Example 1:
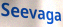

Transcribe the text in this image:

Seevaga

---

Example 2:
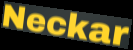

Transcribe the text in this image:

Neckar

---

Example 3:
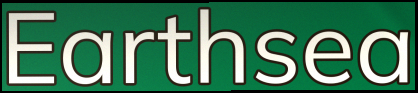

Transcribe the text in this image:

Earthsea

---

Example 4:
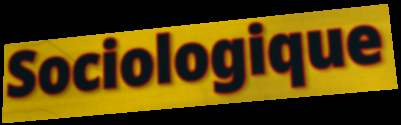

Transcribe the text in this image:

Sociologique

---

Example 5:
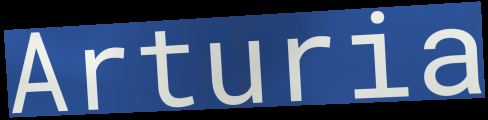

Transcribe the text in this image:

Arturia